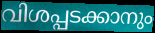
വിശപ്പടക്കാനും